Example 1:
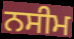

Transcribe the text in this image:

ਨਸੀਮ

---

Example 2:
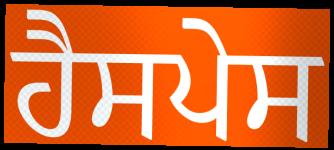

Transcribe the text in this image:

ਹੈਸਪੇਸ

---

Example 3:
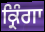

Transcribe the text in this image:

ਕ੍ਰਿੰਗਾ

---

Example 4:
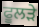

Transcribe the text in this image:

ਫੂਲੜੇ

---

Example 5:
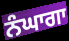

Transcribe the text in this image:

ਨੰਘਾਗਾ